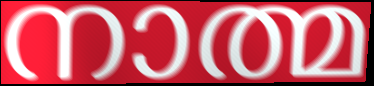
നാത്മ